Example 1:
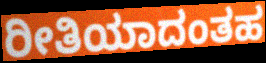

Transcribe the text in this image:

ರೀತಿಯಾದಂತಹ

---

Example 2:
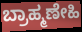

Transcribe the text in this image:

ಬ್ರಾಹ್ಮಣೇಹಿ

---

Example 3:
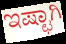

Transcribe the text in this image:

ಇಷ್ಟಾಗಿ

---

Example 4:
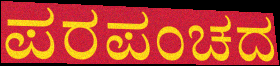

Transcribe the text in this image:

ಪರಪಂಚದ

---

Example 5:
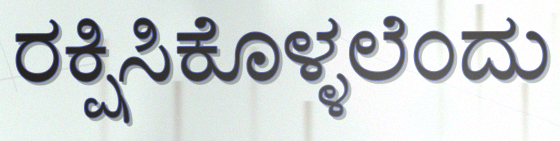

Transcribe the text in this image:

ರಕ್ಷಿಸಿಕೊಳ್ಳಲೆಂದು